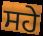
ਸਹੇ